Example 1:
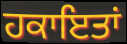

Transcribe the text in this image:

ਹਕਾਇਤਾਂ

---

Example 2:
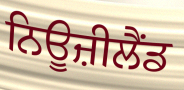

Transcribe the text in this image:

ਨਿਊਜ਼ੀਲੈੰਡ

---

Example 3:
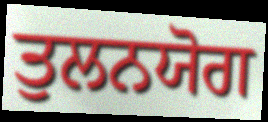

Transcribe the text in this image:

ਤੁਲਨਯੋਗ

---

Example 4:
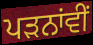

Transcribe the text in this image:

ਪੜਨਾਂਵੀਂ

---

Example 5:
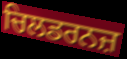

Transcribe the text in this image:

ਚਿਲਡਰਨਜ਼